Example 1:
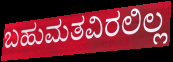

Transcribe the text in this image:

ಬಹುಮತವಿರಲಿಲ್ಲ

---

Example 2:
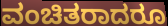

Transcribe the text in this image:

ವಂಚಿತರಾದರೂ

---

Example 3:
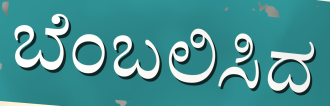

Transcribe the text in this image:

ಬೆಂಬಲಿಸಿದ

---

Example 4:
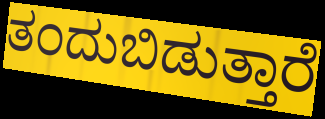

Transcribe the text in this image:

ತಂದುಬಿಡುತ್ತಾರೆ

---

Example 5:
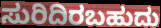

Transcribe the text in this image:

ಸುರಿದಿರಬಹುದು